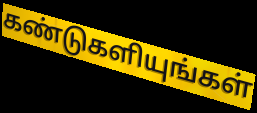
கண்டுகளியுங்கள்